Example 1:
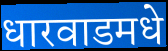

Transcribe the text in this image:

धारवाडमधे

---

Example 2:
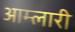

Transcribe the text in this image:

आम्लारी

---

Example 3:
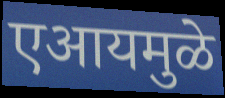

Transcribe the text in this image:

एआयमुळे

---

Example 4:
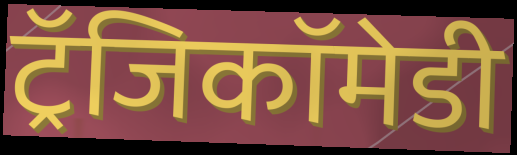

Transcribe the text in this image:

ट्रॅजिकॉमेडी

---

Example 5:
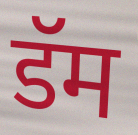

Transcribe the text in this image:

डॅम